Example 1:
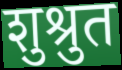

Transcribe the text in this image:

शुश्रुत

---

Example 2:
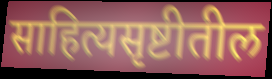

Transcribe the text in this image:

साहित्यसृष्टीतील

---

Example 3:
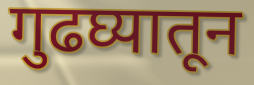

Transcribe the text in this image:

गुढघ्यातून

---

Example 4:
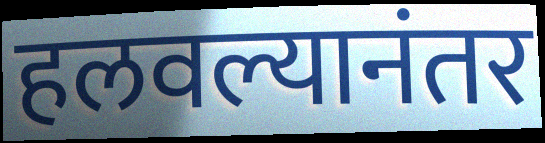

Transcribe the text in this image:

हलवल्यानंतर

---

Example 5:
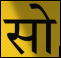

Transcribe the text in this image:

सो